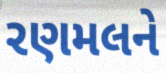
રણમલને